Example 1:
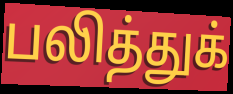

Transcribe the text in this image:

பலித்துக்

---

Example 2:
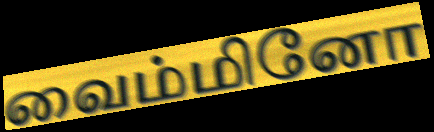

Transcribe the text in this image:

வைம்மினோ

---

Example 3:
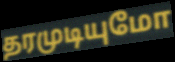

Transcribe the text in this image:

தரமுடியுமோ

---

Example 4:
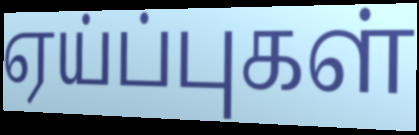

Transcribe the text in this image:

ஏய்ப்புகள்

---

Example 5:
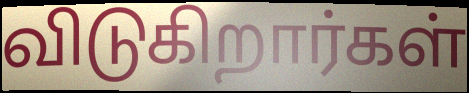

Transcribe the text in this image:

விடுகிறார்கள்